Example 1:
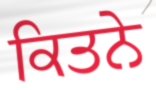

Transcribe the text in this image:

ਕਿਤਨੇ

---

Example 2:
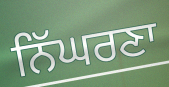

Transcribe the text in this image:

ਨਿੱਘਰਣਾ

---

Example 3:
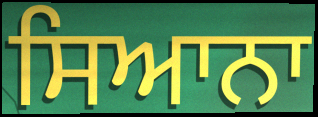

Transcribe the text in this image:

ਸਿਆਨਾ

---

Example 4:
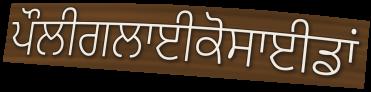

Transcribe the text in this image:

ਪੌਲੀਗਲਾਈਕੋਸਾਈਡਾਂ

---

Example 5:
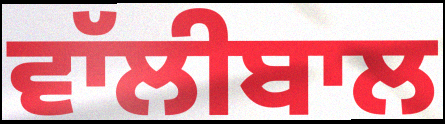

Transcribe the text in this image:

ਵਾੱਲੀਬਾਲ